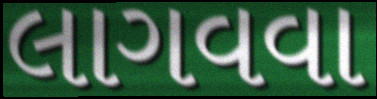
લાગવવા